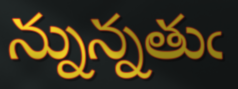
న్నున్నతుఁ